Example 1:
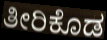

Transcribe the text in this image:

ತೀರಿಕೊಡ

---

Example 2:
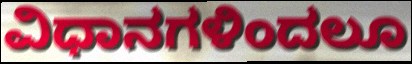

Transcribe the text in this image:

ವಿಧಾನಗಳಿಂದಲೂ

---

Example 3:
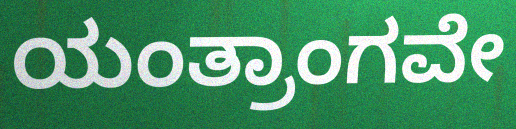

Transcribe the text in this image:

ಯಂತ್ರಾಂಗವೇ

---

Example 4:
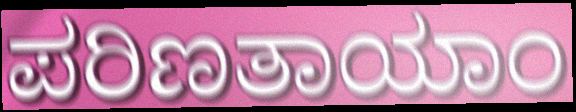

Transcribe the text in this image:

ಪರಿಣತಾಯಾಂ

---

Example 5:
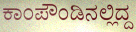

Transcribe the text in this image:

ಕಾಂಪೌಂಡಿನಲ್ಲಿದ್ದ